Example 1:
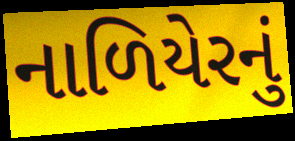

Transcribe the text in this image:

નાળિયેરનું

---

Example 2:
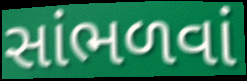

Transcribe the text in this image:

સાંભળવાં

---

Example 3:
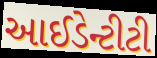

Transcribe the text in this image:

આઈડેન્ટીટી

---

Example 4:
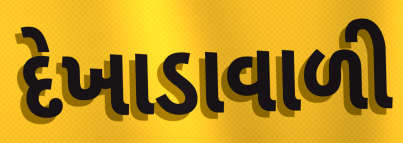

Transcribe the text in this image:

દેખાડાવાળી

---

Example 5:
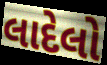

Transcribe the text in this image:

લાદેલો